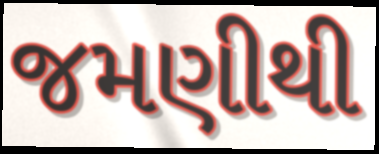
જમણીથી